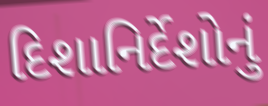
દિશાનિર્દેશોનું